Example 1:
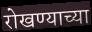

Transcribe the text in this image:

रोखण्याच्या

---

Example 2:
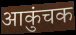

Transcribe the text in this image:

आकुंचक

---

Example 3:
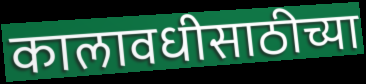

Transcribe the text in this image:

कालावधीसाठीच्या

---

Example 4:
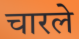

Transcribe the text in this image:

चारले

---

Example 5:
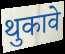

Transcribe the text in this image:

थुकावे